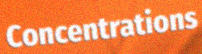
Concentrations